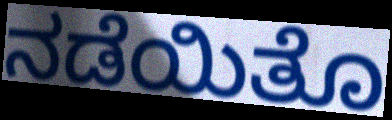
ನಡೆಯಿತೊ